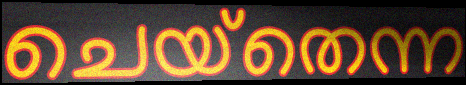
ചെയ്‌തെന്ന